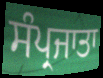
ਸੰਪ੍ਰਜਾਤਾ